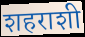
शहराशी